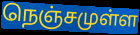
நெஞ்சமுள்ள